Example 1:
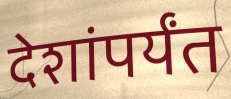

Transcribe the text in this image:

देशांपर्यंत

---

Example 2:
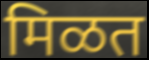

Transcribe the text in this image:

मिळत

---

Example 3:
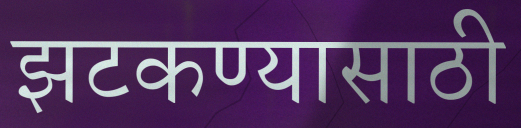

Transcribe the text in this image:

झटकण्यासाठी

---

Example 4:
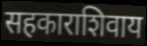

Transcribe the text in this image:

सहकाराशिवाय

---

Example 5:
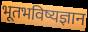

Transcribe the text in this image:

भूतभविष्यज्ञान